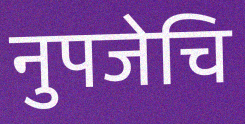
नुपजेचि